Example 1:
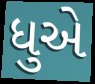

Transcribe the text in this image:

ધુએ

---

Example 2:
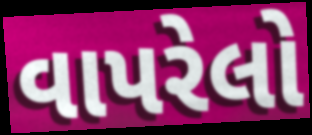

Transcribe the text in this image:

વાપરેલો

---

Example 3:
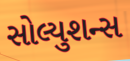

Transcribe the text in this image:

સોલ્યુશન્સ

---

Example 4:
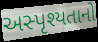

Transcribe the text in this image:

અસ્પૃશ્યતાનો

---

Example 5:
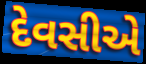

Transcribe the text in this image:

દેવસીએ